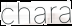
chara